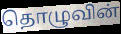
தொழுவின்